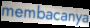
membacanya